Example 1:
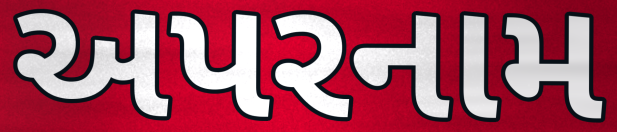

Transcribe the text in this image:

અપરનામ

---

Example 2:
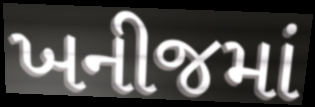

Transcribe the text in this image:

ખનીજમાં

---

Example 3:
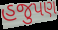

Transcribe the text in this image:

હજુપણ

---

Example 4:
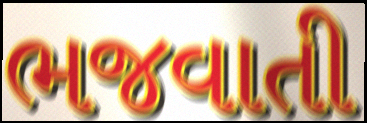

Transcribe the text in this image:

ભજવાતી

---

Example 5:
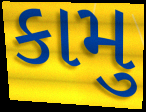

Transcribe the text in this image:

કામુ